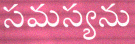
సమస్యను